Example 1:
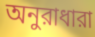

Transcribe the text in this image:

অনুরাধারা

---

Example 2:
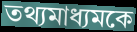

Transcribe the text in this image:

তথ্যমাধ্যমকে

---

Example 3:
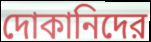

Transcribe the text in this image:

দোকানিদের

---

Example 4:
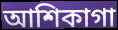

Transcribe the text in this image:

আশিকাগা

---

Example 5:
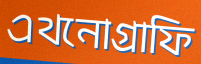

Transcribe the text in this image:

এথনোগ্রাফি